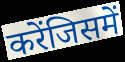
करेंजिसमें